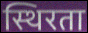
स्थिरता